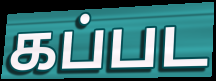
கப்பட